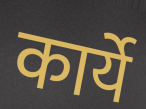
कार्ये